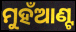
ମୁହଁଆଣ୍ଟ